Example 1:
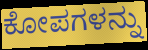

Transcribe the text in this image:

ಕೋಪಗಳನ್ನು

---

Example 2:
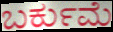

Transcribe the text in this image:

ಬರ್ಕುಮೆ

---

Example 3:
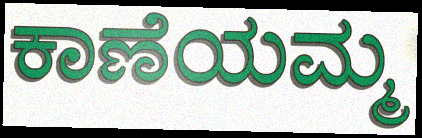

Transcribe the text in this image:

ಕಾಣೆಯಮ್ಮ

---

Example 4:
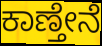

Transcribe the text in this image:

ಕಾಣ್ತೇನೆ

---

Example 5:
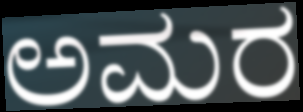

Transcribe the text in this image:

ಅಮರ